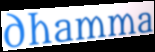
dhamma